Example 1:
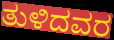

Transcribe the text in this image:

ತುಳಿದವರ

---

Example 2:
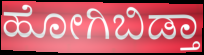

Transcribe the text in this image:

ಹೋಗಿಬಿಡ್ತಾ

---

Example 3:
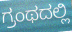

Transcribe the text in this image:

ಗ್ರಂಥದಲ್ಲಿ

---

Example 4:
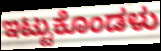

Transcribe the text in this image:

ಇಟ್ಟುಕೊಂಡಳು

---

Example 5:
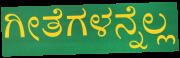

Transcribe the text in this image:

ಗೀತೆಗಳನ್ನೆಲ್ಲ